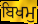
ਬਿਖਮੁ